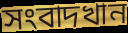
সংবাদখান